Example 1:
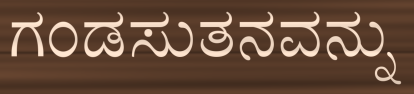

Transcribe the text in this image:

ಗಂಡಸುತನವನ್ನು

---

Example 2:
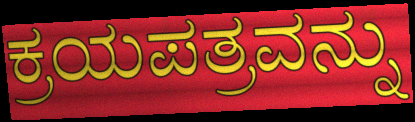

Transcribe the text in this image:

ಕ್ರಯಪತ್ರವನ್ನು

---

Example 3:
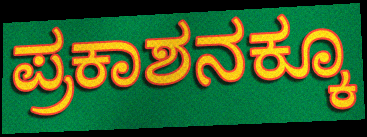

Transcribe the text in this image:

ಪ್ರಕಾಶನಕ್ಕೂ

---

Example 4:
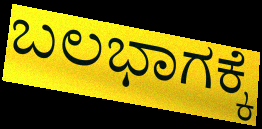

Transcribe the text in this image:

ಬಲಭಾಗಕ್ಕೆ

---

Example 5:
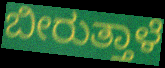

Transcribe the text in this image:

ಬೀರುತ್ತಾಳೆ